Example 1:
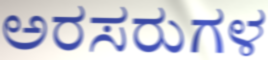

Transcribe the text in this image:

ಅರಸರುಗಳ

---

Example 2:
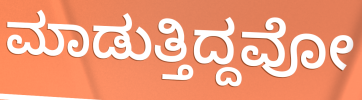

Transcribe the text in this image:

ಮಾಡುತ್ತಿದ್ದವೋ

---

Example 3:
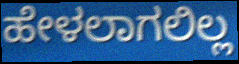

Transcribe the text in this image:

ಹೇಳಲಾಗಲಿಲ್ಲ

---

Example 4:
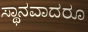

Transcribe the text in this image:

ಸ್ಥಾನವಾದರೂ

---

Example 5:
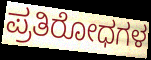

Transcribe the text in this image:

ಪ್ರತಿರೋಧಗಳ